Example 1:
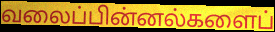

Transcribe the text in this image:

வலைப்பின்னல்களைப்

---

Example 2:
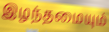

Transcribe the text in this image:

இழந்தமையும்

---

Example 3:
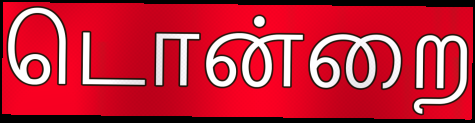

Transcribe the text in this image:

டொன்றை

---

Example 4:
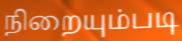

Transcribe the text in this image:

நிறையும்படி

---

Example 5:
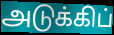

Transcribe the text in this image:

அடுக்கிப்